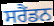
ਸਰੈਂਡਨ